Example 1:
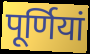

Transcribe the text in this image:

पूर्णियां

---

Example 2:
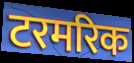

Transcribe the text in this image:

टरमरिक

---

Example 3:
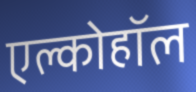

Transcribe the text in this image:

एल्कोहॉल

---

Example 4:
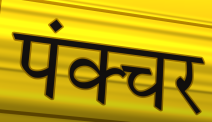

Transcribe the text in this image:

पंक्चर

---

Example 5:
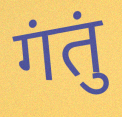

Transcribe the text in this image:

गंतुं